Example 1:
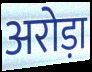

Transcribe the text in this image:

अरोड़ा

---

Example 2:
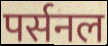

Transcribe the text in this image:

पर्सनल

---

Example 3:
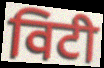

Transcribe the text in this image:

विटी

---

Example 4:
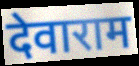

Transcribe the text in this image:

देवाराम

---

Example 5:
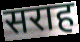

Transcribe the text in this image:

सराह